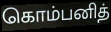
கொம்பனித்